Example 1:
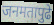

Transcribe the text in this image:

जनमतापुढे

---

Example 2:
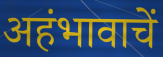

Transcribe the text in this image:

अहंभावाचें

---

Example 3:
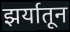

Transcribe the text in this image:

झर्यातून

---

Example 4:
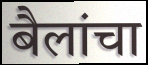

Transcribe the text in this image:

बैलांचा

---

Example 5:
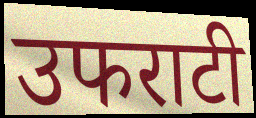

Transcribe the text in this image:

उफराटी